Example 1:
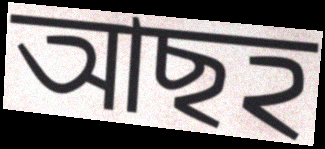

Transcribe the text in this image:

আছহ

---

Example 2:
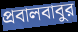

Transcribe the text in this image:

প্রবালবাবুর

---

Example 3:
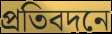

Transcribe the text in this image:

প্রতিবদনে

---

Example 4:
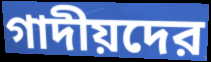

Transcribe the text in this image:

গাদীয়দের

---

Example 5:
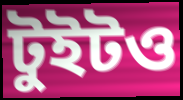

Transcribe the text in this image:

টুইটও